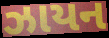
ઝાયન